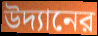
উদ্যানের